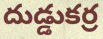
దుడ్డుకర్ర